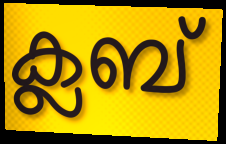
ക്ലബ്